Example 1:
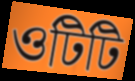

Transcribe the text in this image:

ওটিটি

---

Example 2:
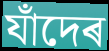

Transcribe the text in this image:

যাঁদেৰ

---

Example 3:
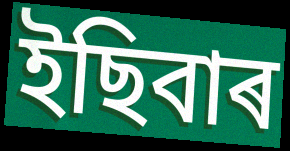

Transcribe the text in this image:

ইছিবাৰ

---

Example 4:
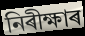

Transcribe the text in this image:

নিৰীক্ষাৰ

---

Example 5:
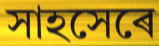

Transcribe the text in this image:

সাহসেৰে